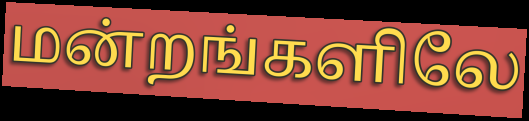
மன்றங்களிலே